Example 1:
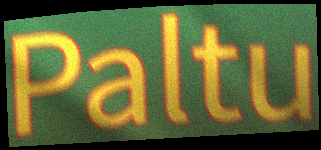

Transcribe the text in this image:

Paltu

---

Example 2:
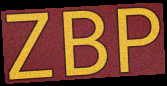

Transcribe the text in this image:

ZBP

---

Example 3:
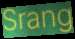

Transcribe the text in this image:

Srang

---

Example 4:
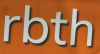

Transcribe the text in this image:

rbth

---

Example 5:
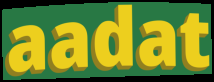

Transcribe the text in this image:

aadat